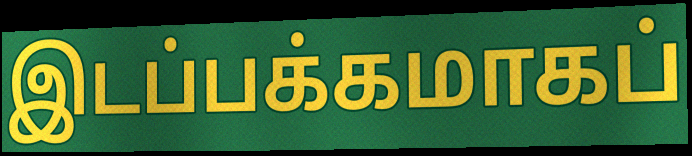
இடப்பக்கமாகப்